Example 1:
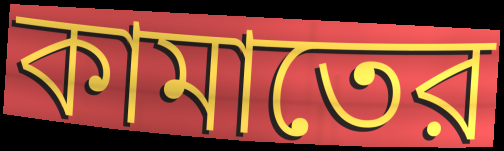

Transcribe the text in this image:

কামাতের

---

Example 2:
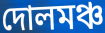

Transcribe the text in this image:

দোলমঞ্চ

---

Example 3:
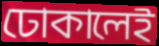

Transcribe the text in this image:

ঢোকালেই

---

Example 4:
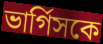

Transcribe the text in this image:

ভার্গিসকে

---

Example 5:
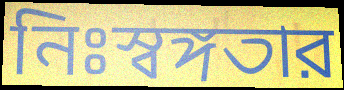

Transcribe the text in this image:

নিঃস্বঙ্গতার